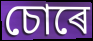
চোৰে